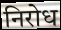
निरोध